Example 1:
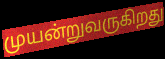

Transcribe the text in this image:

முயன்றுவருகிறது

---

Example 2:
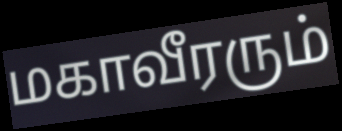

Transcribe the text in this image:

மகாவீரரும்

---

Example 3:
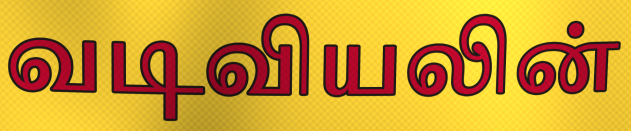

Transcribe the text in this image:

வடிவியலின்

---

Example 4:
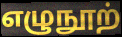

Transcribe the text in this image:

எழுநூற்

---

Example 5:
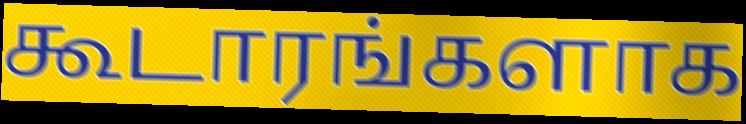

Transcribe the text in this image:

கூடாரங்களாக